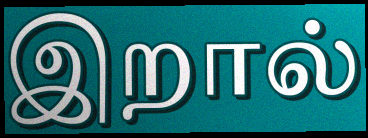
இறால்